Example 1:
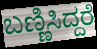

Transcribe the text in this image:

ಬಣ್ಣಿಸಿದ್ದರೆ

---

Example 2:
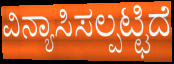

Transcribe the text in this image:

ವಿನ್ಯಾಸಿಸಲ್ಪಟ್ಟಿದೆ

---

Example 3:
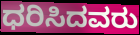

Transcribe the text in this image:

ಧರಿಸಿದವರು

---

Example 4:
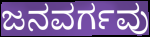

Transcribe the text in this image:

ಜನವರ್ಗವು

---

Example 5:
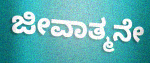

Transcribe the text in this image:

ಜೀವಾತ್ಮನೇ